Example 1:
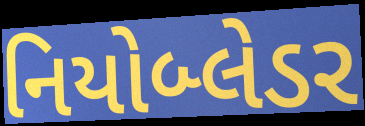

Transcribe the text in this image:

નિયોબ્લેડર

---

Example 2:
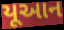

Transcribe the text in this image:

યૂઆન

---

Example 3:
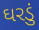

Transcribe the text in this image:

ઘરડું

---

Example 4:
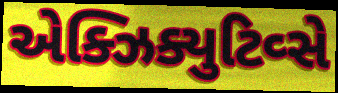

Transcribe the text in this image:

એક્ઝિક્યુટિવ્સે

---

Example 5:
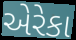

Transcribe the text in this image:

એરેકા